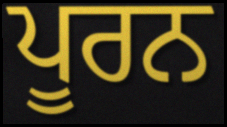
ਪੂਰਨ